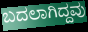
ಬದಲಾಗಿದ್ದವು